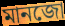
মানজো